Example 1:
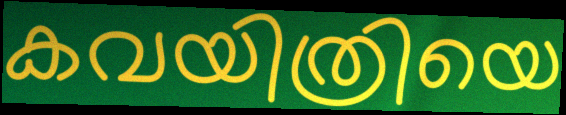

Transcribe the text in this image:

കവയിത്രിയെ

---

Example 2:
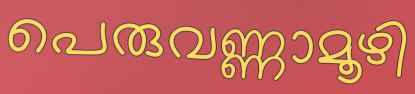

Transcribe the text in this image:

പെരുവണ്ണാമൂഴി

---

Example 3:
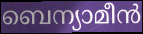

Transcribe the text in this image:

ബെന്യാമീൻ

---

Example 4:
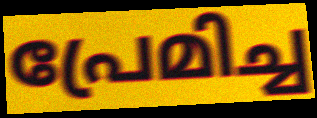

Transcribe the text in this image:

പ്രേമിച്ച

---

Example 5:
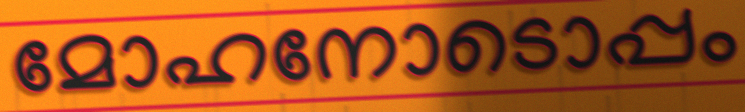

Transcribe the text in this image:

മോഹനോടൊപ്പം